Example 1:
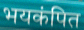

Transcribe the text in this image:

भयकंपित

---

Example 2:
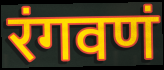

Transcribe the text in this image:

रंगवणं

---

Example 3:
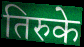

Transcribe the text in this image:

तिरुके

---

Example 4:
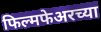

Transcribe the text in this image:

फिल्मफेअरच्या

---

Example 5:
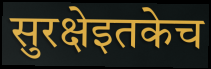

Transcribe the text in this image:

सुरक्षेइतकेच